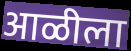
आळीला